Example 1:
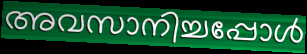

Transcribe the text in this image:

അവസാനിച്ചപ്പോൾ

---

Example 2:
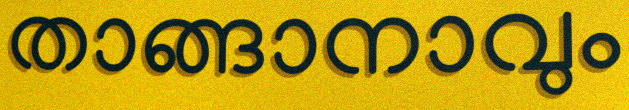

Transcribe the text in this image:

താങ്ങാനാവും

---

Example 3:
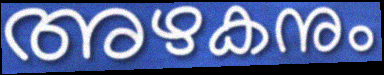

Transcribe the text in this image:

അഴകനും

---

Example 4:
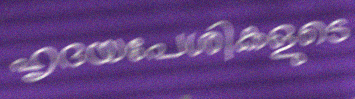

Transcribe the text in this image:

ഹൃദയപേശികളുടെ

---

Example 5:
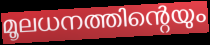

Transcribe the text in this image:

മൂലധനത്തിന്റെയും